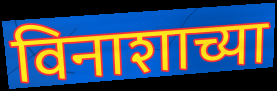
विनाशाच्या